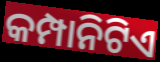
କମ୍ପାନିଟିଏ